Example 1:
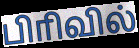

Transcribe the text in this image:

பிரிவில்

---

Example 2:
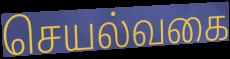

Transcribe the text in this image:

செயல்வகை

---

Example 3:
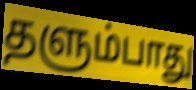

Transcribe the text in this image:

தளும்பாது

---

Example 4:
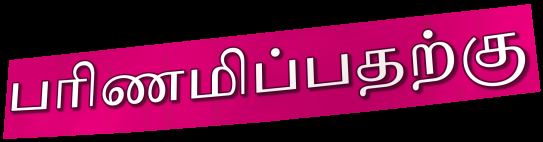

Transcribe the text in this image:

பரிணமிப்பதற்கு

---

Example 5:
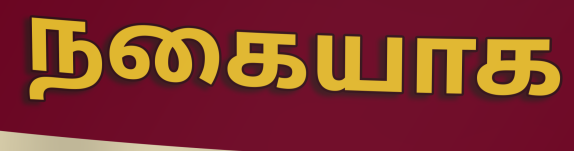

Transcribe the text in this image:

நகையாக